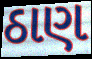
ઠાણ